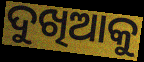
ଦୁଖିଆକୁ